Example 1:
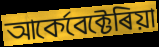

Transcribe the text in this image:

আৰ্কেবেক্টেৰিয়া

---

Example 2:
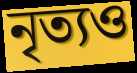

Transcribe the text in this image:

নৃত্যও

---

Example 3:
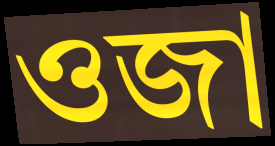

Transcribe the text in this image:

ওজা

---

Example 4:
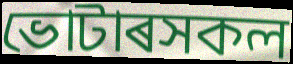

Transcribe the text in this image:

ভোটাৰসকল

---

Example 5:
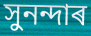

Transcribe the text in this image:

সুনন্দাৰ